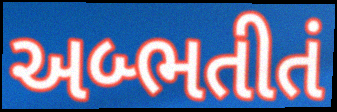
અબ્ભતીતં